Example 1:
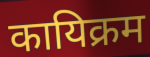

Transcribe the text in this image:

कायिक्रम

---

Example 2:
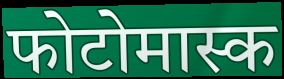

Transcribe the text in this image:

फोटोमास्क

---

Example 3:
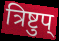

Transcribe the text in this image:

त्रिष्टुप्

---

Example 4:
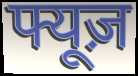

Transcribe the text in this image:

फ्यूज़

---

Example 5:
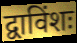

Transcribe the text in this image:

द्वाविंशः